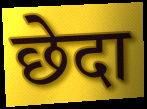
छेदा